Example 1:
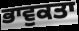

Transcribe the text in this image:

ਭਾਵੁਕਤਾ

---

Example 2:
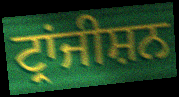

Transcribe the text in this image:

ਟ੍ਰਾਂਜੀਸ਼ਨ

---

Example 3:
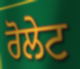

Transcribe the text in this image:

ਰੋਲੇਟ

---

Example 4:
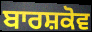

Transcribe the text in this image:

ਬਾਰਸ਼ਕੋਵ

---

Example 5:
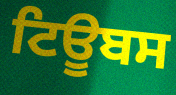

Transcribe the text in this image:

ਟਿਊਬਸ